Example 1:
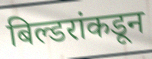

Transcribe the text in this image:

बिल्डरांकडून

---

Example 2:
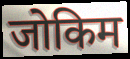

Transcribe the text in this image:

जोकिम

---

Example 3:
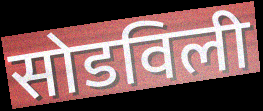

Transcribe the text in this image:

सोडविली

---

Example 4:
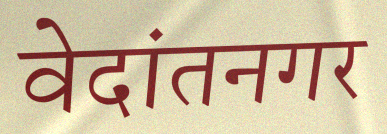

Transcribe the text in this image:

वेदांतनगर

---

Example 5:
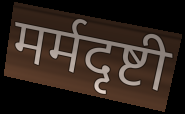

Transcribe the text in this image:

मर्मदृष्टी